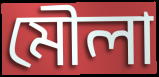
মৌলা